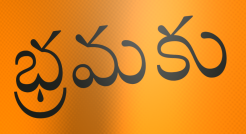
భ్రమకు